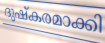
ദുഷ്കരമാക്കി